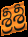
శ్రీశ్రీ